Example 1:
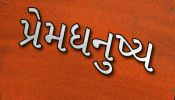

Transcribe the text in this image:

પ્રેમધનુષ્ય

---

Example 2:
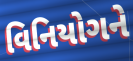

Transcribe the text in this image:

વિનિયોગને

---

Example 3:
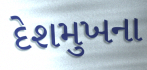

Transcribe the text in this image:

દેશમુખના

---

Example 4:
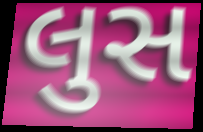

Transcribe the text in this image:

લુસ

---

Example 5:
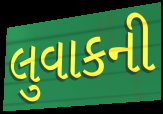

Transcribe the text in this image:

લુવાકની